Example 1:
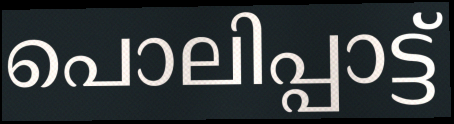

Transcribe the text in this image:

പൊലിപ്പാട്ട്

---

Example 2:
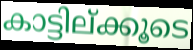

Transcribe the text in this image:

കാട്ടില്ക്കൂടെ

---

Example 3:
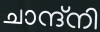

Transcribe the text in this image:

ചാന്ദ്നി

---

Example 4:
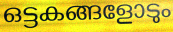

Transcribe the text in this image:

ഒട്ടകങ്ങളോടും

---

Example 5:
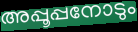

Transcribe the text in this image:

അപ്പൂപ്പനോടും